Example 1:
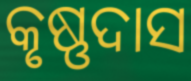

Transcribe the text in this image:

କୃଷ୍ଣଦାସ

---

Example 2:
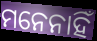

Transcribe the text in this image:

ମନେନାହିଁ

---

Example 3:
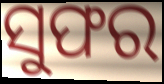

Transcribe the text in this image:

ସୁଫର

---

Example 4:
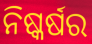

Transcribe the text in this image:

ନିଷ୍କର୍ଷର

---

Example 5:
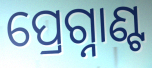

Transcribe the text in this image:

ପ୍ରେଗ୍ନାଣ୍ଟ